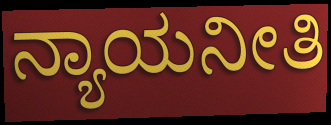
ನ್ಯಾಯನೀತಿ